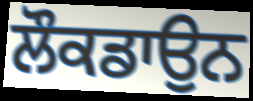
ਲੌਕਡਾਉਨ